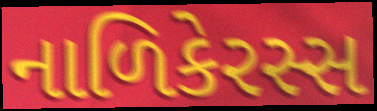
નાળિકેરસ્સ